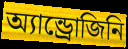
অ্যান্ড্রোজিনি